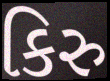
કિરુ